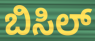
ಬಿಸಿಲ್